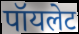
पॉयलेट